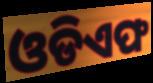
ଓଡିଏଫ